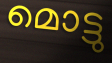
മൊട്ടു